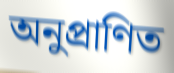
অনুপ্ৰাণিত